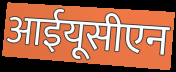
आईयूसीएन